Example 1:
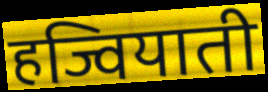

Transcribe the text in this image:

हज्वियाती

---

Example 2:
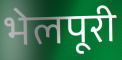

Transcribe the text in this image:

भेलपूरी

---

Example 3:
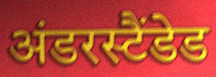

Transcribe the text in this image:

अंडरस्टैंडेड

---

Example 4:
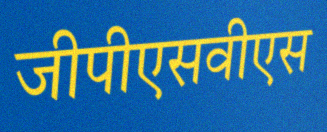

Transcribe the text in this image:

जीपीएसवीएस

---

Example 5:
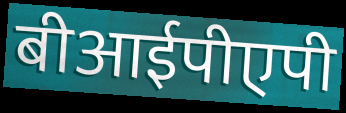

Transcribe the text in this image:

बीआईपीएपी